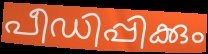
പീഡിപ്പിക്കും